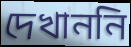
দেখাননি